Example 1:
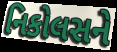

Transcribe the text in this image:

નિકોલસને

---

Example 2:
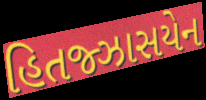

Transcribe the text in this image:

હિતજ્ઝાસયેન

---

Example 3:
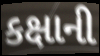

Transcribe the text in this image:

કક્ષાની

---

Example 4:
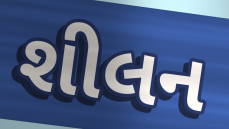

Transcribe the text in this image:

શીલન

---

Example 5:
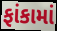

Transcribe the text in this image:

ફાંકામાં